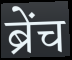
ब्रेंच